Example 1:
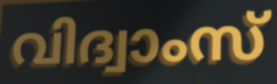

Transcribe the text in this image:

വിദ്വാംസ്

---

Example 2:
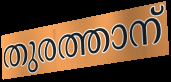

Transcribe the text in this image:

തുരത്താന്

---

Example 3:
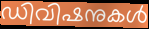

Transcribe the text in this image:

ഡിവിഷനുകൾ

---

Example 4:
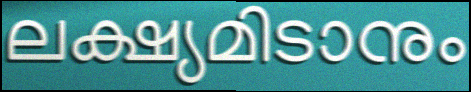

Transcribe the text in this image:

ലക്ഷ്യമിടാനും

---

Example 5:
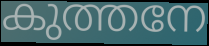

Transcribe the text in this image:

കുത്തനേ